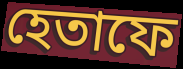
হেতাফে